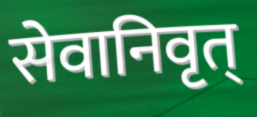
सेवानिवृत्